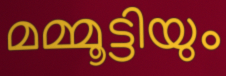
മമ്മൂട്ടിയും